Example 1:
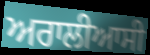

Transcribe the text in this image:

ਅਰਾਲੀਆਸੀ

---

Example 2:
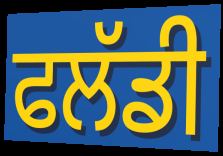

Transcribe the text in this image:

ਫਲੱਡੀ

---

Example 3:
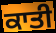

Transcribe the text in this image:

ਕਾਤੀ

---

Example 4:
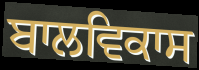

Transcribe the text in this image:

ਬਾਲਵਿਕਾਸ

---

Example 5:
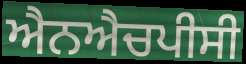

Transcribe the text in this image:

ਐਨਐਚਪੀਸੀ